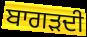
ਬਾਗੜਦੀ